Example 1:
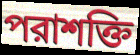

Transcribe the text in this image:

পরাশক্তি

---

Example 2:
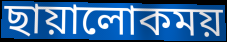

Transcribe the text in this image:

ছায়ালোকময়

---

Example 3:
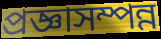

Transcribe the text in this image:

প্রজ্ঞাসম্পন্ন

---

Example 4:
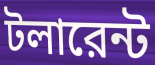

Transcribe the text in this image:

টলারেন্ট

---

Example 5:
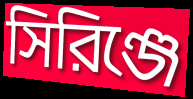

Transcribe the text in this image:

সিরিঞ্জে